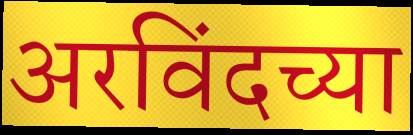
अरविंदच्या